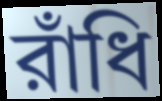
রাঁধি